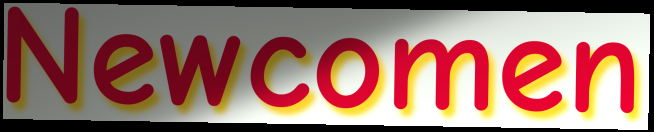
Newcomen